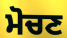
ਮੋਚਣ